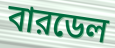
বারডেল